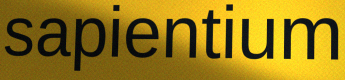
sapientium